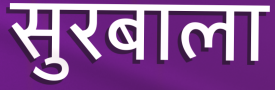
सुरबाला